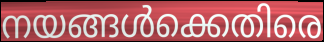
നയങ്ങൾക്കെതിരെ